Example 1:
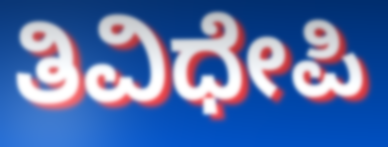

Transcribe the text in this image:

ತಿವಿಧೇಪಿ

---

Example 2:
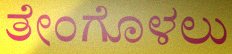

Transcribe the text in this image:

ತೇಂಗೊಳಲು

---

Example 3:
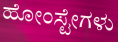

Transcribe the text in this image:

ಹೋಂಸ್ಟೇಗಳು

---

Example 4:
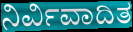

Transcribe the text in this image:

ನಿರ್ವಿವಾದಿತ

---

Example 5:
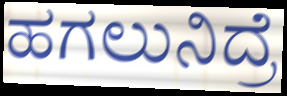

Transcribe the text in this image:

ಹಗಲುನಿದ್ರೆ